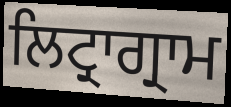
ਲਿਟ੍ਰਾਗ੍ਰਾਮ